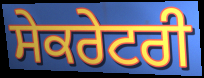
ਸੇਕਰੇਟਰੀ